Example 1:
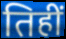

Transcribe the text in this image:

तिहीं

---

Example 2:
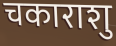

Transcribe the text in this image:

चकाराशु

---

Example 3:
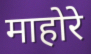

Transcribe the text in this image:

माहोरे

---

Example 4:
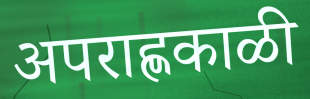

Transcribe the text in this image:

अपराह्णकाळी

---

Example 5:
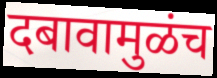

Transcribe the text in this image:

दबावामुळंच